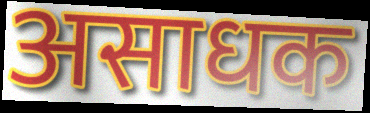
असाधक